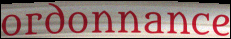
ordonnance